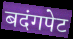
बदंगपेट